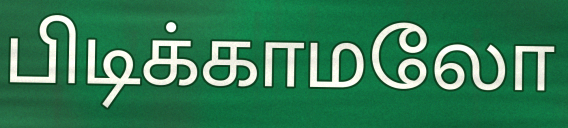
பிடிக்காமலோ